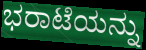
ಭರಾಟೆಯನ್ನು